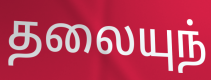
தலையுந்